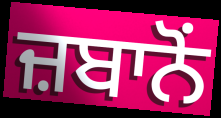
ਜ਼ਬਾਨੋਂ